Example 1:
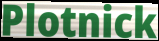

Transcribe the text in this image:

Plotnick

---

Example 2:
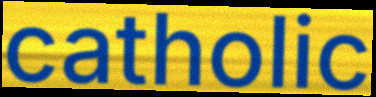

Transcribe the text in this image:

catholic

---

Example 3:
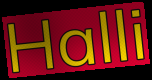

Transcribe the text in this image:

Halli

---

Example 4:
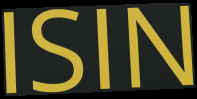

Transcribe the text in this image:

ISIN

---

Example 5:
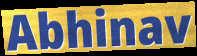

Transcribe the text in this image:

Abhinav